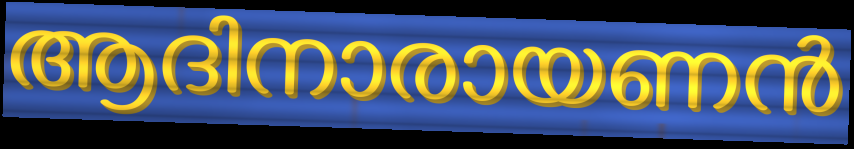
ആദിനാരായണൻ